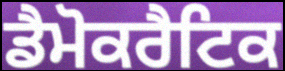
ਡੈਮੋਕਰੈਟਿਕ